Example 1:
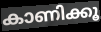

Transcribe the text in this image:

കാണിക്കൂ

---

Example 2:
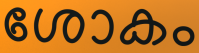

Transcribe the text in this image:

ശോകം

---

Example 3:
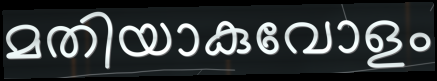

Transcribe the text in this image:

മതിയാകുവോളം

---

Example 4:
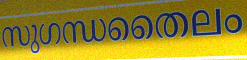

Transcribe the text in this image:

സുഗന്ധതൈലം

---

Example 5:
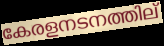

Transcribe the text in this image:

കേരളനടനത്തില്